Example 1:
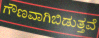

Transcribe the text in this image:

ಗೌಣವಾಗಿಬಿಡುತ್ತವೆ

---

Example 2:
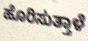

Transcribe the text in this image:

ಹೊರಿಸುತ್ತಾಳೆ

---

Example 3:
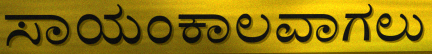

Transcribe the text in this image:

ಸಾಯಂಕಾಲವಾಗಲು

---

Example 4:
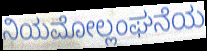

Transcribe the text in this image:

ನಿಯಮೋಲ್ಲಂಘನೆಯ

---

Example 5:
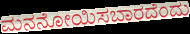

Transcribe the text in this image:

ಮನನೋಯಿಸಬಾರದೆಂದು